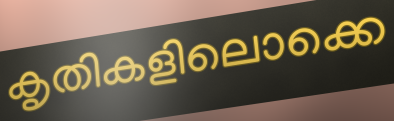
കൃതികളിലൊക്കെ